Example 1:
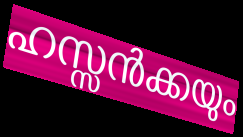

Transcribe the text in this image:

ഹസ്സൻക്കയും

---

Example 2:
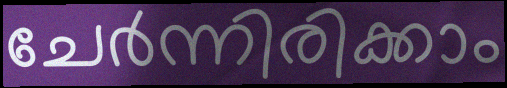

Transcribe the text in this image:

ചേർന്നിരിക്കാം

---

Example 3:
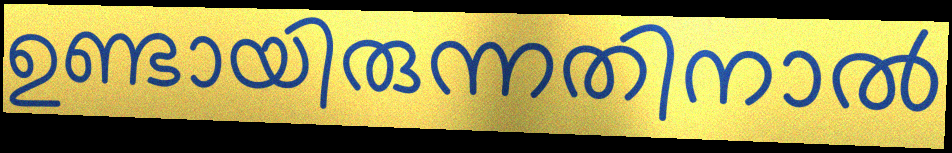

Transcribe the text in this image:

ഉണ്ടായിരുന്നതിനാൽ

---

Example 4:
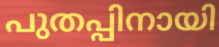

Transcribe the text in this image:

പുതപ്പിനായി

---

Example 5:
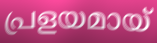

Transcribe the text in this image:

പ്രളയമായ്